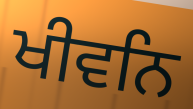
ਖੀਵਨਿ